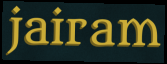
jairam